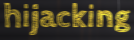
hijacking